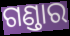
ଗଣ୍ଡାର